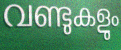
വണ്ടുകളും